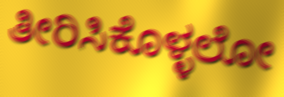
ತೀರಿಸಿಕೊಳ್ಳಲೋ